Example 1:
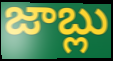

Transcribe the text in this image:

జాబ్లు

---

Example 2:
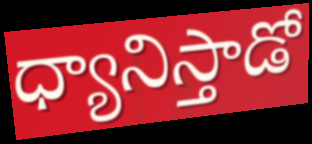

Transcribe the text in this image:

ధ్యానిస్తాడో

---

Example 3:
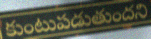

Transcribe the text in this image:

కుంటుపడుతుందని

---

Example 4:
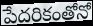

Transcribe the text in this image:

పేదరికంతోనో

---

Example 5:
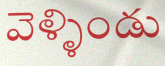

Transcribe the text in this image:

వెళ్ళిండు